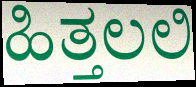
ಹಿತ್ತಲಲಿ